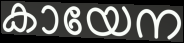
കായേന